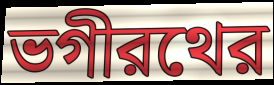
ভগীরথের